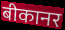
बीकानर